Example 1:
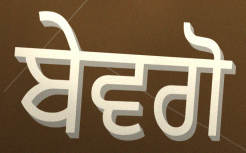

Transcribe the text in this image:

ਬੇਵਗੋ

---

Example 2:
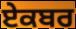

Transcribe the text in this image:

ਏਕਬਰ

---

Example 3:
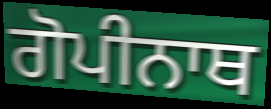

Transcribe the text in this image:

ਗੋਪੀਨਾਥ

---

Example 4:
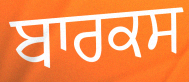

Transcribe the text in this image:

ਬਾਰਕਸ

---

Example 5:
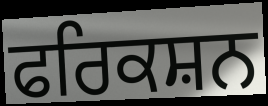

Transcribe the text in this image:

ਫਰਿਕਸ਼ਨ